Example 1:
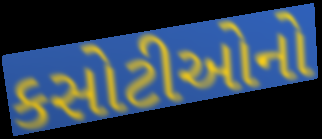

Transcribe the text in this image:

કસોટીઓનો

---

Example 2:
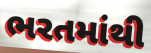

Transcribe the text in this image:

ભરતમાંથી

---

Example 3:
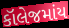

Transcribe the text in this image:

કૉલેજમાંય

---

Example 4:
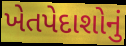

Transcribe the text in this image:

ખેતપેદાશોનું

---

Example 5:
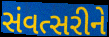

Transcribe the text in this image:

સંવત્સરીને